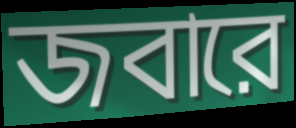
জবারে